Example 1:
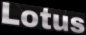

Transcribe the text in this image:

Lotus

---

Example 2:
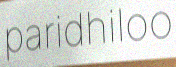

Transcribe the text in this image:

paridhiloo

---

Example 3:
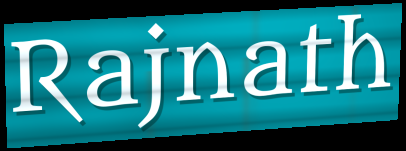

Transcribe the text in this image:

Rajnath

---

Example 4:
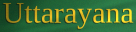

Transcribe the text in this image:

Uttarayana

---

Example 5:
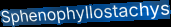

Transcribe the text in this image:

Sphenophyllostachys